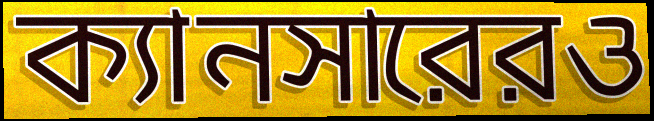
ক্যানসারেরও